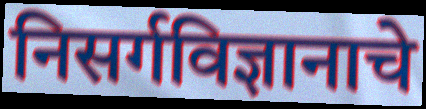
निसर्गविज्ञानाचे